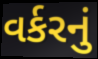
વર્કરનું